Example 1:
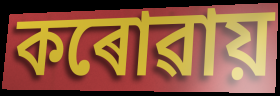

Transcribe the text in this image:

কৰোৱায়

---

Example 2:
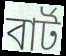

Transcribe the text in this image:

বাৰ্ট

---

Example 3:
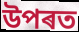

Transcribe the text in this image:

উপৰত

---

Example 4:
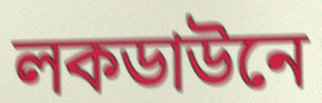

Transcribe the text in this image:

লকডাউনে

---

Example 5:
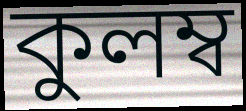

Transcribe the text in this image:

কুলম্ব